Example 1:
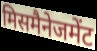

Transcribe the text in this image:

मिसमैनेजमेंट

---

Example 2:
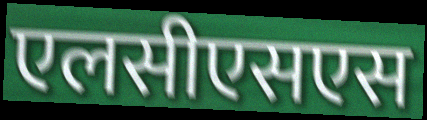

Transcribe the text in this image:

एलसीएसएस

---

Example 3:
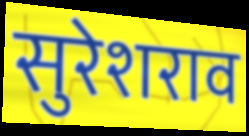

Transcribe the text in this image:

सुरेशराव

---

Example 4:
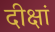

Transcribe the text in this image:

दीक्षां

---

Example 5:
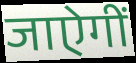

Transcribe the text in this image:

जाऐगीं